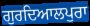
ਗੁਰਦਿਆਲਪੁਰਾ